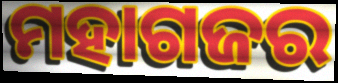
ମହାଗଜର